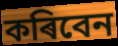
কৰিবেন